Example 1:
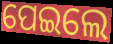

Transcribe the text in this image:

ପେଇଲେ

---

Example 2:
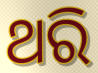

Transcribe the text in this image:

ଥରି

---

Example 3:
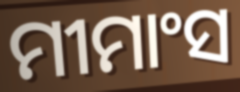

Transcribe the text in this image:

ମୀମାଂସ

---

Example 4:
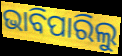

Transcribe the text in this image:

ଭାବିପାରିଲୁ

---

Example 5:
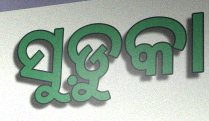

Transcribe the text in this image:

ସୁଡ଼ୁକା